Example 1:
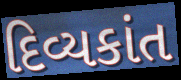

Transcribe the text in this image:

દિવ્યકાંત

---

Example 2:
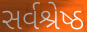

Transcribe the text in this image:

સર્વશ્રેષ્ઠ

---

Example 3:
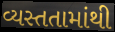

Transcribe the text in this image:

વ્યસ્તતામાંથી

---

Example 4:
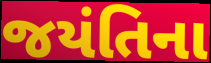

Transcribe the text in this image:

જયંતિના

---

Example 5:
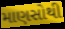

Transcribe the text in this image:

માણસોથી